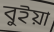
বুইয়া